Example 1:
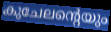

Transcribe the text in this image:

കുചേലന്റെയും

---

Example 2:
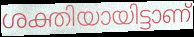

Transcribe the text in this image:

ശക്തിയായിട്ടാണ്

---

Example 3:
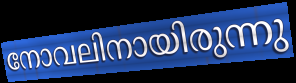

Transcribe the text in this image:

നോവലിനായിരുന്നു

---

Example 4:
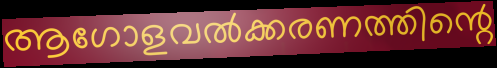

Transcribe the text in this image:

ആഗോളവൽക്കരണത്തിന്റെ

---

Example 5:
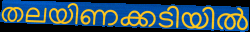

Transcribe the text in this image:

തലയിണക്കടിയിൽ